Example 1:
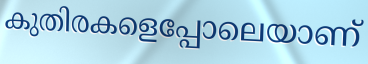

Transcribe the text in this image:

കുതിരകളെപ്പോലെയാണ്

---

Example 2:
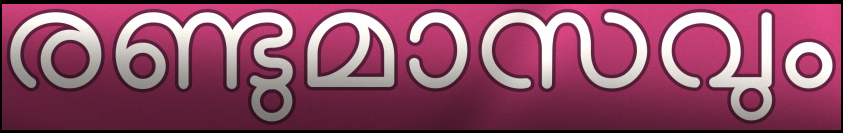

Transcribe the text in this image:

രണ്ടുമാസവും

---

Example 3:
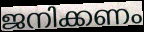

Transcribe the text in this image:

ജനിക്കണം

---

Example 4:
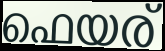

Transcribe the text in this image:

ഫെയര്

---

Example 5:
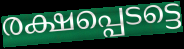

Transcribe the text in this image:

രക്ഷപ്പെടട്ടെ